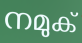
നമുക്